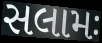
સલામઃ